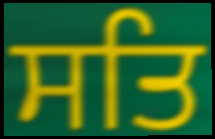
ਸਤਿ